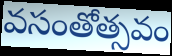
వసంతోత్సవం